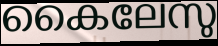
കൈലേസു